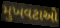
મુખવટાઓ